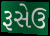
રૂસેઉ